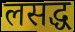
लसद्ध